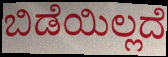
ಬಿಡೆಯಿಲ್ಲದೆ